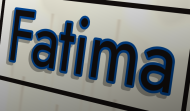
Fatima